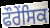
ਫੌਰੇਂਸਿਕ